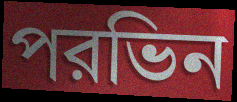
পরভিন